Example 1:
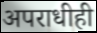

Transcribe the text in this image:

अपराधीही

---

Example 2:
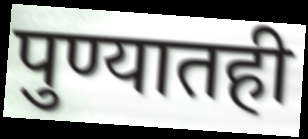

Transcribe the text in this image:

पुण्यातही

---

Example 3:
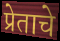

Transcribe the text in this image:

प्रेताचे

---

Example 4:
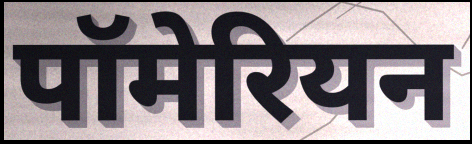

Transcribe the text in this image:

पॉमेरियन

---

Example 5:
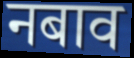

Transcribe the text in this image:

नबाव